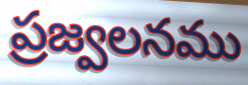
ప్రజ్వలనము